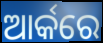
ଆର୍କରେ